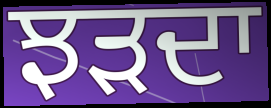
ਝੜਦਾ